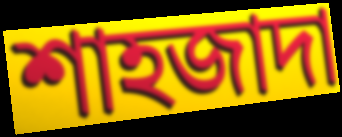
শাহজাদা